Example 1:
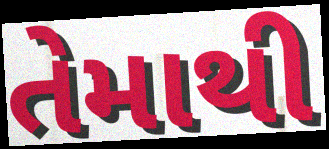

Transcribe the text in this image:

તેમાથી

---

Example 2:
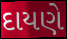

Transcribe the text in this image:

દાયણે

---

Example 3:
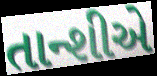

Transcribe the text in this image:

તાન્શીએ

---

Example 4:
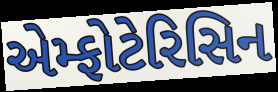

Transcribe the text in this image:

એમ્ફોટેરિસિન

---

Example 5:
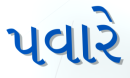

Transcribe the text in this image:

પવારે